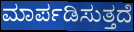
ಮಾರ್ಪಡಿಸುತ್ತದೆ